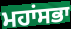
ਮਹਾਂਸਭਾ